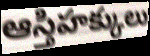
ఆస్తిహక్కులు